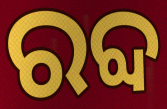
ରବ୍ଦ